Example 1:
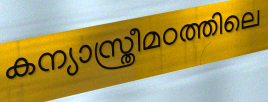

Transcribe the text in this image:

കന്യാസ്ത്രീമഠത്തിലെ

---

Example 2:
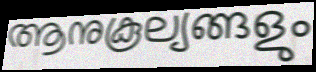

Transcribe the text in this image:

ആനുകൂല്യങ്ങളും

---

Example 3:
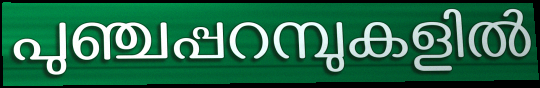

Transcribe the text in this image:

പുഞ്ചപ്പറമ്പുകളിൽ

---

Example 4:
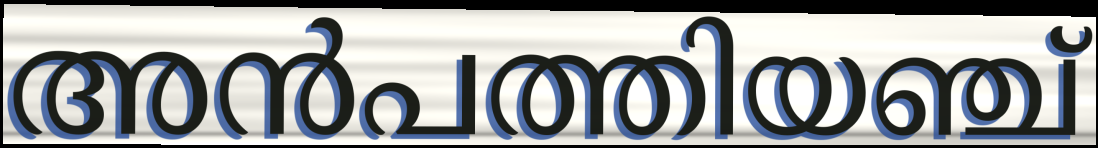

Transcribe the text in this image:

അൻപത്തിയഞ്ച്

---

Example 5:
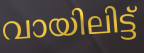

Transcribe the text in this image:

വായിലിട്ട്